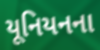
યૂનિયનના